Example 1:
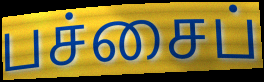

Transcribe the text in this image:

பச்சைப்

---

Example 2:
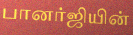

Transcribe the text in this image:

பானர்ஜியின்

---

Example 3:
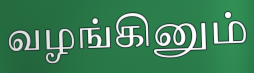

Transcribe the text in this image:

வழங்கினும்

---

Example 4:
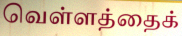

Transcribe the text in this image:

வெள்ளத்தைக்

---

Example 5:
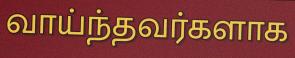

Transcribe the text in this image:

வாய்ந்தவர்களாக